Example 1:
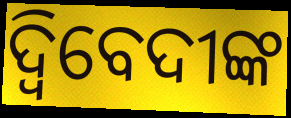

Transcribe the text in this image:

ଦ୍ବିବେଦୀଙ୍କ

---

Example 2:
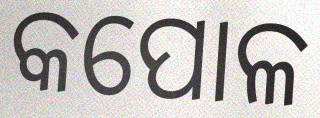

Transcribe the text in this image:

କପୋଳ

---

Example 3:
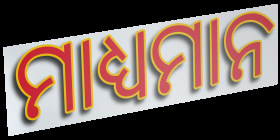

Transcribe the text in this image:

ମାଧ୍ଯମାନ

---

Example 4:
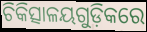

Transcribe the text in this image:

ଚିକିତ୍ସାଳୟଗୁଡ଼ିକରେ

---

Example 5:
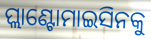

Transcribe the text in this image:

ପ୍ଲାଣ୍ଟୋମାଇସିନକୁ